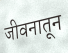
जीवनातून